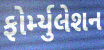
ફોર્મ્યુલેશન